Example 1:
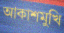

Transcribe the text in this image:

আকাশমুখি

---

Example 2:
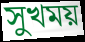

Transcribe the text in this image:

সুখময়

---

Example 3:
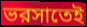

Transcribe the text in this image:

ভরসাতেই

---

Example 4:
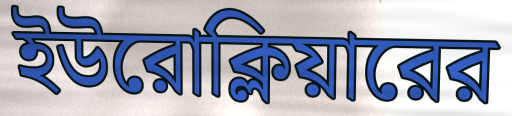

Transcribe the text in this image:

ইউরোক্লিয়ারের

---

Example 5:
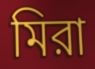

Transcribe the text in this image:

মিরা